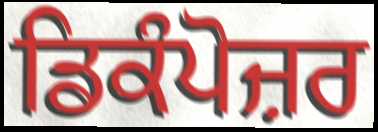
ਡਿਕੰਪੋਜ਼ਰ